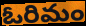
ఓరిమం